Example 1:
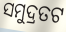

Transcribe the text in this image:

ସମୁଦ୍ରତଟ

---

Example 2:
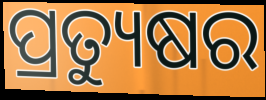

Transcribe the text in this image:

ପ୍ରତ୍ୟୁଷର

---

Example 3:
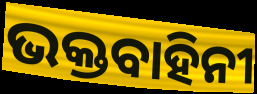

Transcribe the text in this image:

ଭକ୍ତବାହିନୀ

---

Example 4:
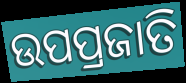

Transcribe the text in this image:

ଉପପ୍ରଜାତି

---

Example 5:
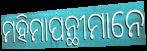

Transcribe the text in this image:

ମହିମାପନ୍ଥୀମାନେ